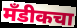
मँडीकचा